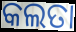
କଲତା